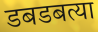
डबडबत्या